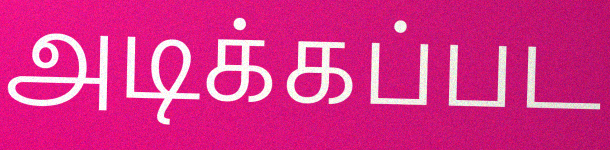
அடிக்கப்பட